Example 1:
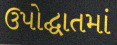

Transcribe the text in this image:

ઉપોદ્ઘાતમાં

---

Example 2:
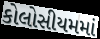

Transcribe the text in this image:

કોલોસીયમમાં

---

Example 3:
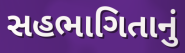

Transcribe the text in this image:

સહભાગિતાનું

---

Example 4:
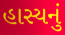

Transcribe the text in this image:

હાસ્યનું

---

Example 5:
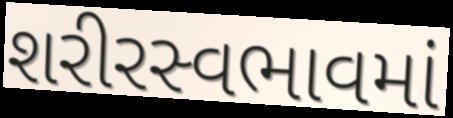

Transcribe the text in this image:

શરીરસ્વભાવમાં